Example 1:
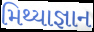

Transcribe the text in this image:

મિથ્યાજ્ઞાન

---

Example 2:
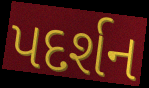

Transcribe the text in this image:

પદર્શન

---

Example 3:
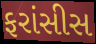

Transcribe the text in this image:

ફરાંસીસ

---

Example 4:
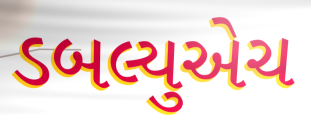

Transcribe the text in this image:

ડબલ્યુએચ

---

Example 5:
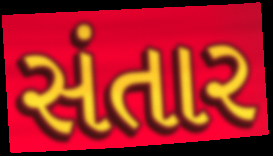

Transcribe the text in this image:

સંતાર